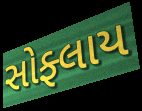
સોફ્લાય